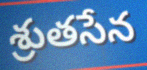
శ్రుతసేన